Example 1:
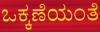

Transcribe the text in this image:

ಒಕ್ಕಣೆಯಂತೆ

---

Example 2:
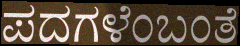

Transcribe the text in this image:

ಪದಗಳೆಂಬಂತೆ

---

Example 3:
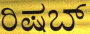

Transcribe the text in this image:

ರಿಷಬ್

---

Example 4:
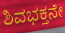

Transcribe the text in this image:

ಶಿವಭಕ್ತನೇ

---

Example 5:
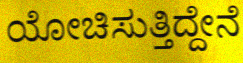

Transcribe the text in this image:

ಯೋಚಿಸುತ್ತಿದ್ದೇನೆ